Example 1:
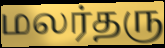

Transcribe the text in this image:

மலர்தரு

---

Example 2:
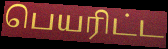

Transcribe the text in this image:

பெயரிட்ட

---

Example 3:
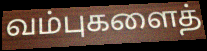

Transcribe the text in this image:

வம்புகளைத்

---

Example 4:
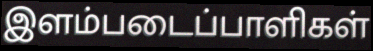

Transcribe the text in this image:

இளம்படைப்பாளிகள்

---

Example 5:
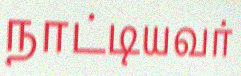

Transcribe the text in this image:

நாட்டியவர்